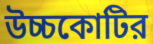
উচ্চকোটির